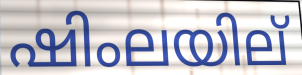
ഷിംലയില്